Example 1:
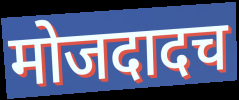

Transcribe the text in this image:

मोजदादच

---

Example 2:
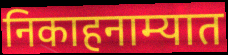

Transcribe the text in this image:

निकाहनाम्यात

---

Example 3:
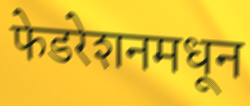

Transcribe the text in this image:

फेडरेशनमधून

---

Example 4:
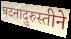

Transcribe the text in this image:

घटनादुरुस्तीने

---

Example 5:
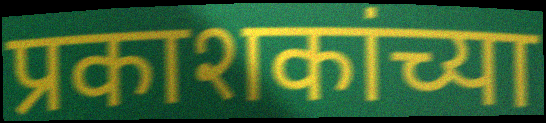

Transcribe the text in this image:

प्रकाशकांच्या